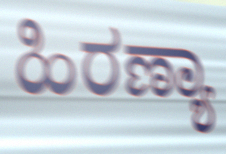
ಹಿರಣ್ಯಾ